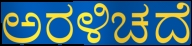
ಅರಳಿಚದೆ